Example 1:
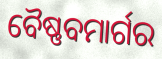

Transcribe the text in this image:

ବୈଷ୍ଣବମାର୍ଗର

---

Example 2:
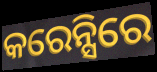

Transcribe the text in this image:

କରେନ୍ସିରେ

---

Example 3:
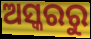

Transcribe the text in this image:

ଅସ୍କରରୁ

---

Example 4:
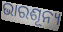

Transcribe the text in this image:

ଭାରଶୂନ୍ୟ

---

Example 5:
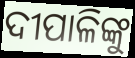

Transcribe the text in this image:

ଦୀପାଳିଙ୍କୁ